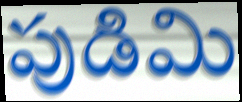
పుడిమి